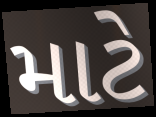
માટે